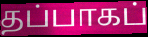
தப்பாகப்